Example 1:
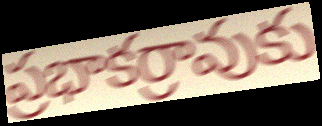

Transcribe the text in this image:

ప్రభాకర్రావుకు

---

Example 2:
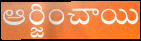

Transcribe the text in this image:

ఆర్జించాయి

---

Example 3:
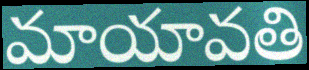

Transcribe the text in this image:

మాయావతి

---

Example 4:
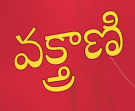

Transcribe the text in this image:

వక్త్రాణి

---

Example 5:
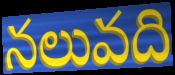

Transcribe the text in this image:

నలువది